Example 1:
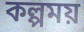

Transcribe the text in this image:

কল্পময়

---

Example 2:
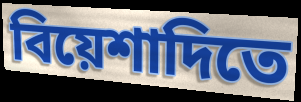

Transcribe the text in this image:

বিয়েশাদিতে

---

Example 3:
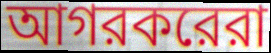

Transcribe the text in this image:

আগরকরেরা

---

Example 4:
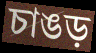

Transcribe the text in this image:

চাঙড়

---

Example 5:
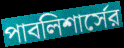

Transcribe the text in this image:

পাবলিশার্সের